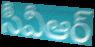
సీవీఆర్